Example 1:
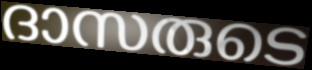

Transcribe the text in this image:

ദാസരുടെ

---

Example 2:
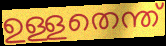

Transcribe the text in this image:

ഉള്ളതെന്ത്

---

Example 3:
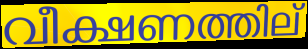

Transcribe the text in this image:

വീക്ഷണത്തില്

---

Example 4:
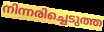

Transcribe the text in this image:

നിന്നരിച്ചെടുത്ത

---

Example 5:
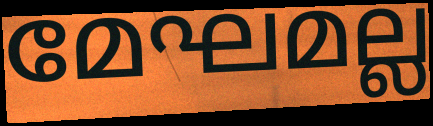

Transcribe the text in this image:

മേഘമല്ല